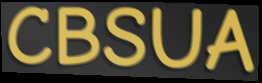
CBSUA